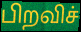
பிறவிச்